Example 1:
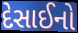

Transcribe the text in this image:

દેસાઈનો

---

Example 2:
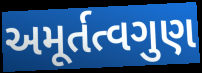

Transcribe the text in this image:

અમૂર્તત્વગુણ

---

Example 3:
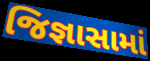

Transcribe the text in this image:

જિજ્ઞાસામાં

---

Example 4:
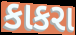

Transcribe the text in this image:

કાકરા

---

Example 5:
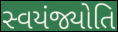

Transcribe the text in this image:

સ્વયંજ્યોતિ